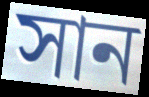
সান